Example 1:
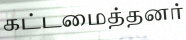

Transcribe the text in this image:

கட்டமைத்தனர்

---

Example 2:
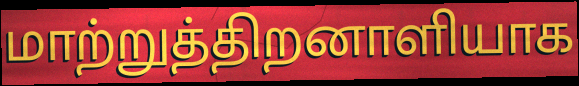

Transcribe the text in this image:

மாற்றுத்திறனாளியாக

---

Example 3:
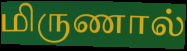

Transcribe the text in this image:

மிருணால்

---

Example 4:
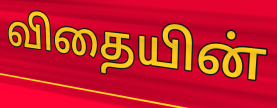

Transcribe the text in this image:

விதையின்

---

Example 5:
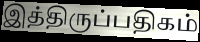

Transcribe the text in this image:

இத்திருப்பதிகம்